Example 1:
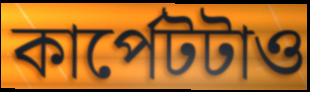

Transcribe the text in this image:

কার্পেটটাও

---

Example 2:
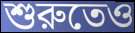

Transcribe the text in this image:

শুরুতেও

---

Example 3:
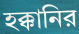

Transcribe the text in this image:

হক্কানির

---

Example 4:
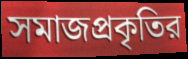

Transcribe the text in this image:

সমাজপ্রকৃতির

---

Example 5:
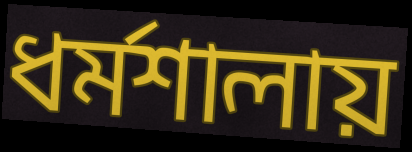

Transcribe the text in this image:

ধর্মশালায়